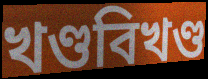
খণ্ডবিখণ্ড